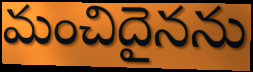
మంచిదైనను